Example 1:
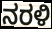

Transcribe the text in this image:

ನರಳಿ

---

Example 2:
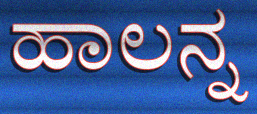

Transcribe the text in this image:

ಹಾಲನ್ನ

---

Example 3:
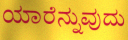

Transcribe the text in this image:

ಯಾರೆನ್ನುವುದು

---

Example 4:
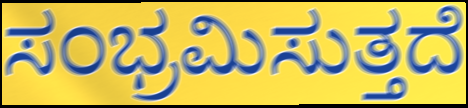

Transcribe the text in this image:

ಸಂಭ್ರಮಿಸುತ್ತದೆ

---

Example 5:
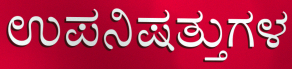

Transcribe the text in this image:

ಉಪನಿಷತ್ತುಗಳ